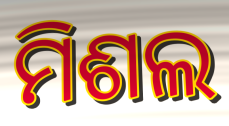
ମିଶଲ